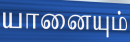
யானையும்